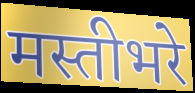
मस्तीभरे